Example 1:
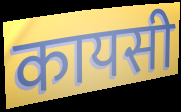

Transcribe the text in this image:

कायसी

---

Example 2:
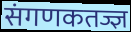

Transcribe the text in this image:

संगणकतज्ज्ञ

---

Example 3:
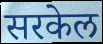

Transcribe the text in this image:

सरकेल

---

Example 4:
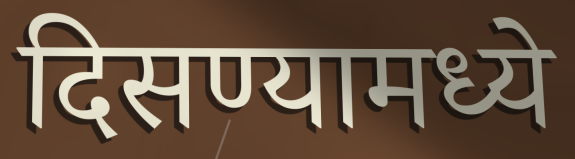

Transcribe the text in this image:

दिसण्यामध्ये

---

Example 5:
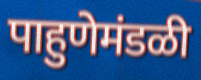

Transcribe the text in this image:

पाहुणेमंडळी